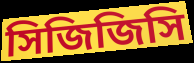
সিজিজিসি